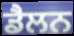
ਡੈਲਨ